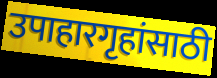
उपाहारगृहांसाठी